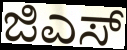
ಜಿಎಸ್